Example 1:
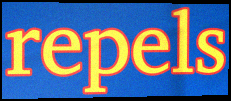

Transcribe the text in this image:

repels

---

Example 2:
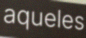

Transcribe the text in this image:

aqueles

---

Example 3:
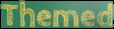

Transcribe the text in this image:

Themed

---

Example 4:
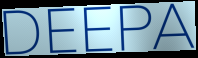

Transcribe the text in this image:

DEEPA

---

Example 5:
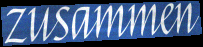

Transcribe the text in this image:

zusammen